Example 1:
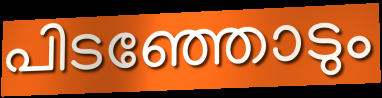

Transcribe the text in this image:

പിടഞ്ഞോടും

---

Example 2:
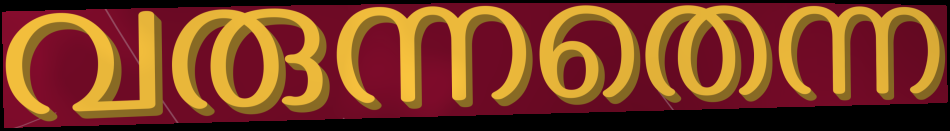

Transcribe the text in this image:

വരുന്നതെന്ന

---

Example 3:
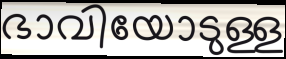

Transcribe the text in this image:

ഭാവിയോടുള്ള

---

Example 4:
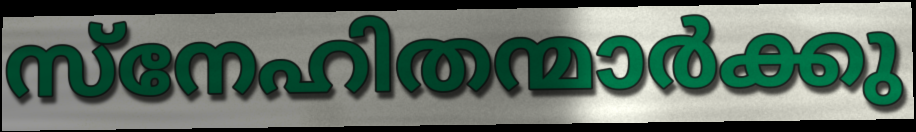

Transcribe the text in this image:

സ്നേഹിതന്മാർക്കു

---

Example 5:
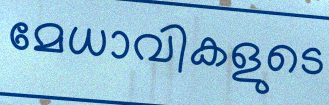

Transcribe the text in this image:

മേധാവികളുടെ